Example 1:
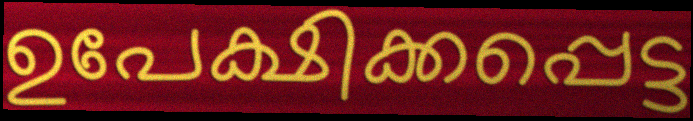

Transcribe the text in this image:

ഉപേക്ഷിക്കപ്പെട്ട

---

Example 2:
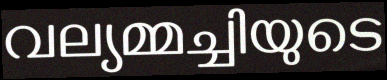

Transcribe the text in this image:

വല്യമ്മച്ചിയുടെ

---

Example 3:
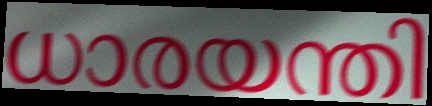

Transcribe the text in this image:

ധാരയന്തി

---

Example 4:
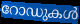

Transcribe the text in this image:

റോഡുകൾ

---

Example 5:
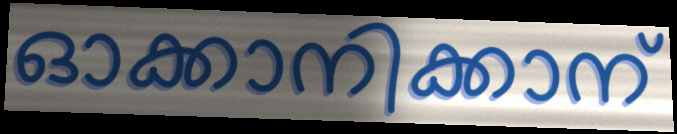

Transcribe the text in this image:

ഓക്കാനിക്കാന്